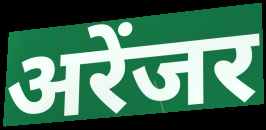
अरेंजर